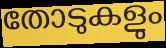
തോടുകളും